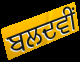
ਬਲਦਵੀਂ